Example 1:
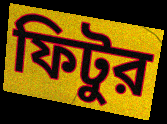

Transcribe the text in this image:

ফিটুর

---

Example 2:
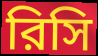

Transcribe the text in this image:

রিসি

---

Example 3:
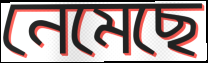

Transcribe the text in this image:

নেমেছে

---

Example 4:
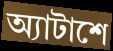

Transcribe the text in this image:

অ্যাটাশে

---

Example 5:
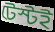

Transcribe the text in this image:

টেস্টই